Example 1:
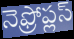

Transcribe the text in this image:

నెఫ్రోప్లస్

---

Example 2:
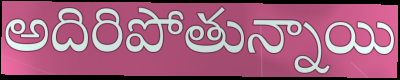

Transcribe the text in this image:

అదిరిపోతున్నాయి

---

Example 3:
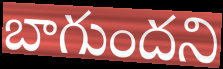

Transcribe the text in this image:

బాగుందని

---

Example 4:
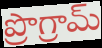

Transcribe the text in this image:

ప్రొగ్రామ్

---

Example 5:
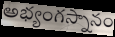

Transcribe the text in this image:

అభ్యంగస్నానం